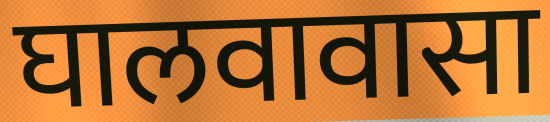
घालवावासा